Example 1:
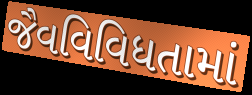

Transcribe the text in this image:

જૈવવિવિધતામાં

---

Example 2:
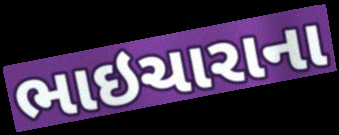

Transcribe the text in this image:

ભાઇચારાના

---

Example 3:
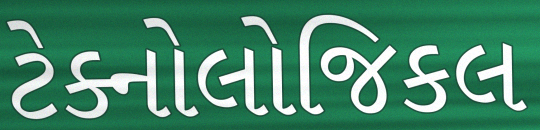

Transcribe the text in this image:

ટેક્નોલોજિકલ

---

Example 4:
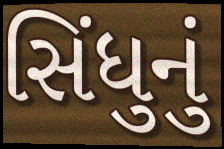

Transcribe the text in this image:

સિંધુનું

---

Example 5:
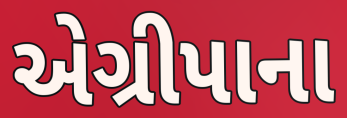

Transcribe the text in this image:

એગ્રીપાના